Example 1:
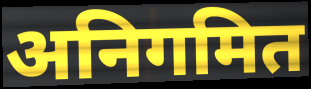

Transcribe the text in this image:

अनिगमित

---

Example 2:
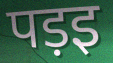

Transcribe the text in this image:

पड़इ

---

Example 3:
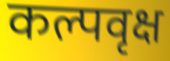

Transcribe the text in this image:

कल्‍पवृक्ष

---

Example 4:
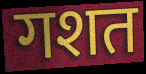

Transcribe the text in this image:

गशत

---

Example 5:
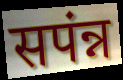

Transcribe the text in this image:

सपंन्न